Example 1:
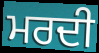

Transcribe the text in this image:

ਮਰਦੀ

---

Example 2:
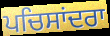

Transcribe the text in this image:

ਪਚਿਸਾਂਦਰਾ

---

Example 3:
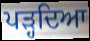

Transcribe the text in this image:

ਪੜ੍ਹਦਿਆ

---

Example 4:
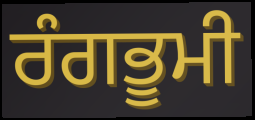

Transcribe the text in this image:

ਰੰਗਭੂਮੀ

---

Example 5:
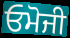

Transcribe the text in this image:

ਓਮੋਜੀ